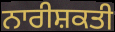
ਨਾਰੀਸ਼ਕਤੀ